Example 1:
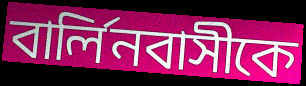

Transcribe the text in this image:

বার্লিনবাসীকে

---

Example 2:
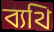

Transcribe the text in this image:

ব্যথি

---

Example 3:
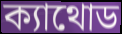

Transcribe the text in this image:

ক্যাথোড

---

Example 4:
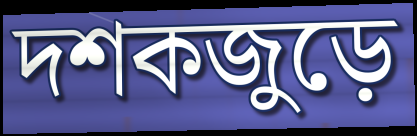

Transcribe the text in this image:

দশকজুড়ে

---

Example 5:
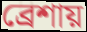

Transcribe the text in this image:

ব্রেশায়